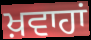
ਖ਼ਵਾਹਾਂ